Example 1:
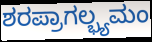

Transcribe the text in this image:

ಶರಪ್ರಾಗಲ್ಭ್ಯಮಂ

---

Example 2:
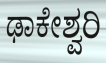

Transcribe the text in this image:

ಢಾಕೇಶ್ವರಿ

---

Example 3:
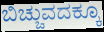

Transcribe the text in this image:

ಬಿಚ್ಚುವದಕ್ಕೂ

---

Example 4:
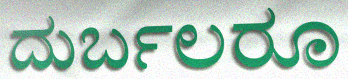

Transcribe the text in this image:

ದುರ್ಬಲರೂ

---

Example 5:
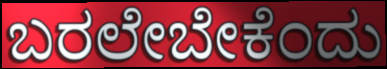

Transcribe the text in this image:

ಬರಲೇಬೇಕೆಂದು